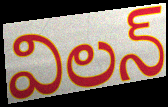
విలన్